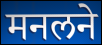
मनलने